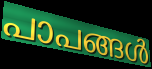
പാപങ്ങൾ